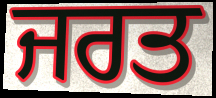
ਜਰਤ